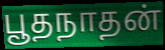
பூதநாதன்